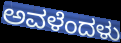
ಅವಳೆಂದಳು